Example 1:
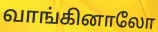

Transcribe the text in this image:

வாங்கினாலோ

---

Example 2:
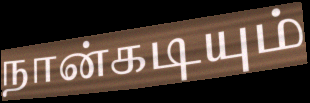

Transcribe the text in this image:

நான்கடியும்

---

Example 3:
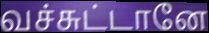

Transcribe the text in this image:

வச்சுட்டானே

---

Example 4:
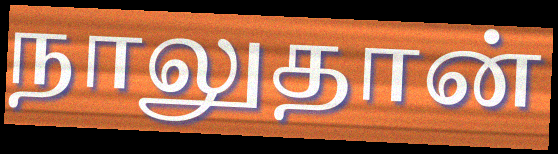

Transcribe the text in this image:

நாலுதான்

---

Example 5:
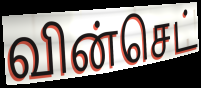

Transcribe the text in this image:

வின்செட்